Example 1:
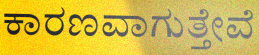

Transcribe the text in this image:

ಕಾರಣವಾಗುತ್ತೇವೆ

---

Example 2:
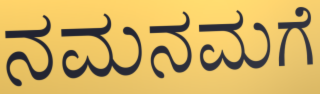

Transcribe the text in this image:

ನಮನಮಗೆ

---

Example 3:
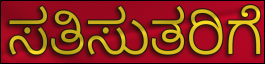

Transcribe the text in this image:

ಸತಿಸುತರಿಗೆ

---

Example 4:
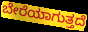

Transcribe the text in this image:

ಬೇರೆಯಾಗುತ್ತದೆ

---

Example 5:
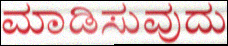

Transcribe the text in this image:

ಮಾಡಿಸುವುದು